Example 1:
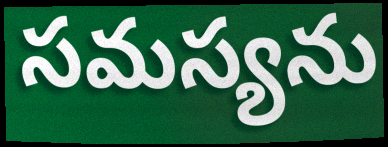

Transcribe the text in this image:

సమస్యను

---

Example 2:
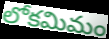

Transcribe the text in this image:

లోకమిమం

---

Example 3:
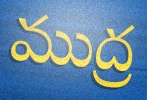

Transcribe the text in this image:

ముద్ర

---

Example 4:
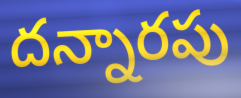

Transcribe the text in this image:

దన్నారపు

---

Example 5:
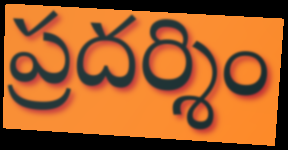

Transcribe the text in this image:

ప్రదర్శిం